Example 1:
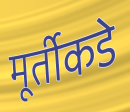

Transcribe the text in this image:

मूर्तीकडे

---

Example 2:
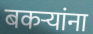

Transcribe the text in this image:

बकर्‍यांना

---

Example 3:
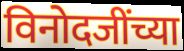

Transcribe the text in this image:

विनोदजींच्या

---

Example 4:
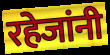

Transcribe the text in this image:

रहेजांनी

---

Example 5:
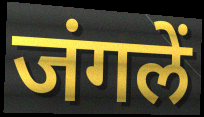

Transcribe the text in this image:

जंगलें